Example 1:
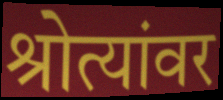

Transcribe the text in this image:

श्रोत्यांवर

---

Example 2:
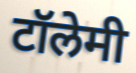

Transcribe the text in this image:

टॉलेमी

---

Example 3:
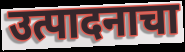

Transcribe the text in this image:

उत्पादनाचा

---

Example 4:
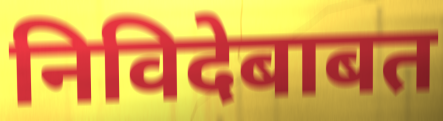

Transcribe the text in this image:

निविदेबाबत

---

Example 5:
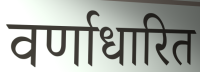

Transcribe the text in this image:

वर्णाधारित